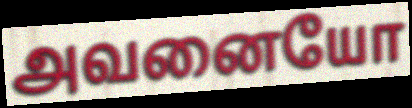
அவனையோ